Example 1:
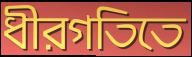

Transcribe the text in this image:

ধীরগতিতে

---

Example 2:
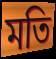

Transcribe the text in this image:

মতি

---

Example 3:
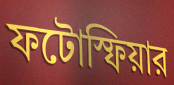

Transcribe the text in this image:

ফটোস্ফিয়ার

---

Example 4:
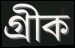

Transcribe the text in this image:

গ্রীক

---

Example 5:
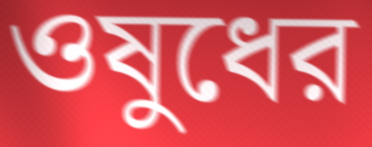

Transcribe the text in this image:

ওষুধের